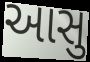
આસુ